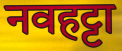
नवहट्टा